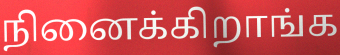
நினைக்கிறாங்க